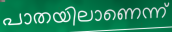
പാതയിലാണെന്ന്